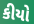
કીયો